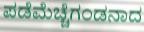
ಪಡೆಮೆಚ್ಚೆಗಂಡನಾದ